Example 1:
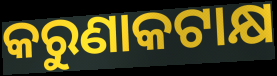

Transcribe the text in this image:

କରୁଣାକଟାକ୍ଷ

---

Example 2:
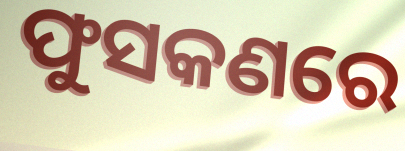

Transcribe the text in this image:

ଫୁସକଣରେ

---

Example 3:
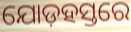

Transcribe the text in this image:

ଯୋଡ଼ହସ୍ତରେ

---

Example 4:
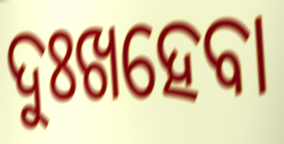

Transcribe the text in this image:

ଦୁଃଖହେବା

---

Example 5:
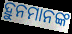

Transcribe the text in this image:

ହୁନମାନଙ୍କ